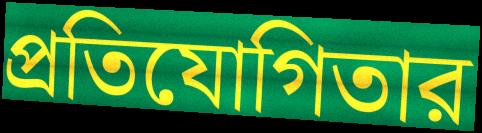
প্রতিযোগিতার